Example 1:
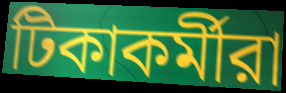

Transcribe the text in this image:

টিকাকর্মীরা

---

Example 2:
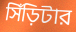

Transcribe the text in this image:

সিঁড়িটার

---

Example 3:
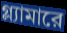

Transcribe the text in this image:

গ্ল্যামারে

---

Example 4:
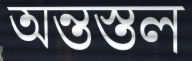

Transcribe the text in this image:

অন্তস্তল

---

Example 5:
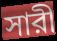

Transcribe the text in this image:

সারী